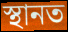
স্থানত